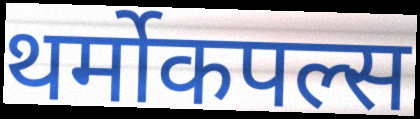
थर्मोकपल्स